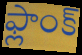
ఫ్లాంక్